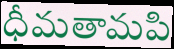
ధీమతామపి